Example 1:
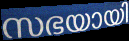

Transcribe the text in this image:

സഭയായി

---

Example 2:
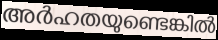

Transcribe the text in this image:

അർഹതയുണ്ടെങ്കിൽ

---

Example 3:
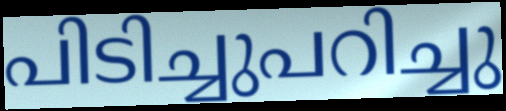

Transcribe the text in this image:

പിടിച്ചുപറിച്ചു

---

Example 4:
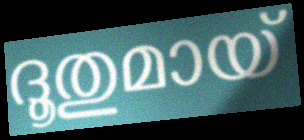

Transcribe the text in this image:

ദൂതുമായ്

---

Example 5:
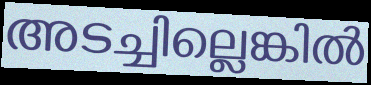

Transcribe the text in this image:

അടച്ചില്ലെങ്കിൽ